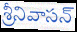
శ్రీనివాసన్